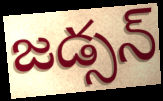
జడ్సన్